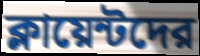
ক্লায়েন্টদের